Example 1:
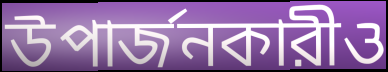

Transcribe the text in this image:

উপার্জনকারীও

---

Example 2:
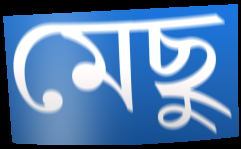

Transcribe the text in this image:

মেছু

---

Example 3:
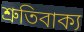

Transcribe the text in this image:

শ্রুতিবাক্য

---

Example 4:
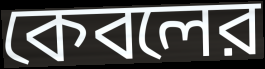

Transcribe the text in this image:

কেবলের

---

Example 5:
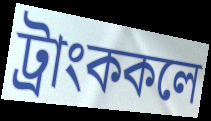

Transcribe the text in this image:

ট্রাংককলে